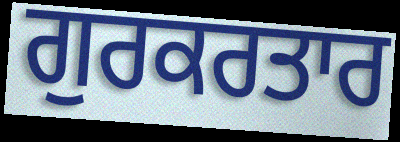
ਗੁਰਕਰਤਾਰ